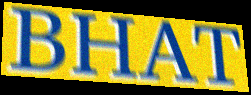
BHAT